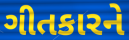
ગીતકારને